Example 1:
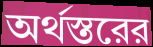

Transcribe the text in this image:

অর্থস্তরের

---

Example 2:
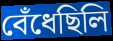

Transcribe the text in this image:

বেঁধেছিলি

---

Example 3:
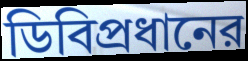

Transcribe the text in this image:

ডিবিপ্রধানের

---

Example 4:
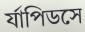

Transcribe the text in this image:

র্যাপিডসে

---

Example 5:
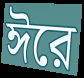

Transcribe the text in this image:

ঈরে